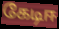
கேடிஈ